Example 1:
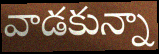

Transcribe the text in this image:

వాడకున్నా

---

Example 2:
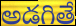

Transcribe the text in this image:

అడగితే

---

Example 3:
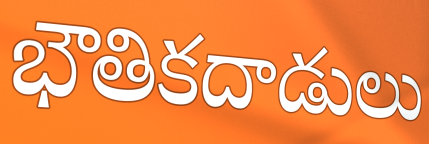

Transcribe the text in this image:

భౌతికదాడులు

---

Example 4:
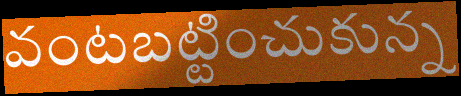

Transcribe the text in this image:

వంటబట్టించుకున్న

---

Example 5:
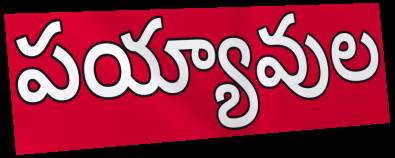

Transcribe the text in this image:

పయ్యావుల